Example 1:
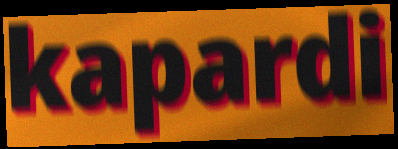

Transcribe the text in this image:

kapardi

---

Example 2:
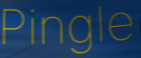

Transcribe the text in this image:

Pingle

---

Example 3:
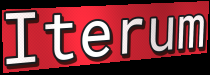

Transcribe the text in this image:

Iterum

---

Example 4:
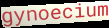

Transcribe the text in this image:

gynoecium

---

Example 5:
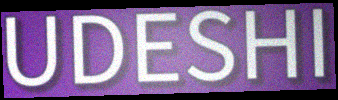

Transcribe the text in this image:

UDESHI